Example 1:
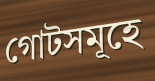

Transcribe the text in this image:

গোটসমূহে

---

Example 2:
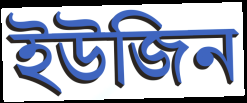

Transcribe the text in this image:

ইউজিন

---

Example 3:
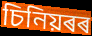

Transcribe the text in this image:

চিনিয়ৰৰ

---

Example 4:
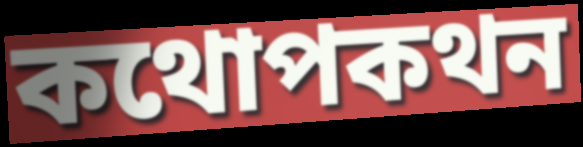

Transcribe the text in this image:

কথোপকথন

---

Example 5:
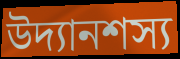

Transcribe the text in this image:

উদ্যানশস্য